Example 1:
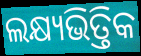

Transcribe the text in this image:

ଲକ୍ଷ୍ୟଭିତ୍ତିକ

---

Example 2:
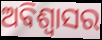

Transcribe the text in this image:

ଅବିଶ୍ବାସର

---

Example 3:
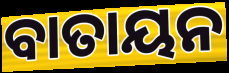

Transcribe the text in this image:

ବାତାୟନ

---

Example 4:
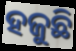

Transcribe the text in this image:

ହଜୁଛି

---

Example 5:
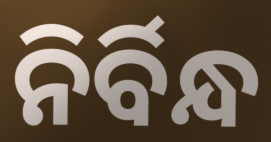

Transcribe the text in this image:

ନିର୍ବିନ୍ଧ